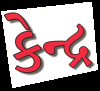
કેન્દ્ર